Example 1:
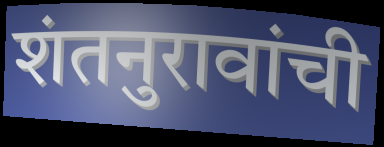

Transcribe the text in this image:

शंतनुरावांची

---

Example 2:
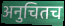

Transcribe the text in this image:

अनुचितच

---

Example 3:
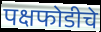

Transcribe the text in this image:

पक्षफोडीचे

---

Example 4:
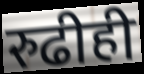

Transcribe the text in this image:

रुढीही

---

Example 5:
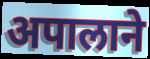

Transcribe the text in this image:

अपालाने